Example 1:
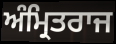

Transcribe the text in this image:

ਅੰਮ੍ਰਿਤਰਾਜ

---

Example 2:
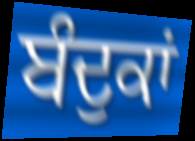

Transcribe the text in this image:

ਬੰਦੁਕਾਂ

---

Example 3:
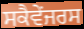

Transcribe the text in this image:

ਸਕੈਵੇਂਜਰਸ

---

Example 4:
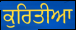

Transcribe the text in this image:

ਕੁਰਿਤੀਆ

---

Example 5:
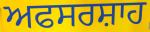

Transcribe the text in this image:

ਅਫਸਰਸ਼ਾਹ